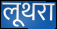
लूथरा